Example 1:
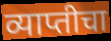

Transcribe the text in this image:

व्याप्तीचा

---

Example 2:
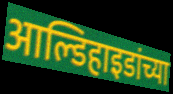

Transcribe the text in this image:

आल्डिहाइडांच्या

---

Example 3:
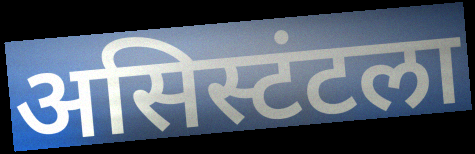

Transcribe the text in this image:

असिस्टंटला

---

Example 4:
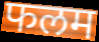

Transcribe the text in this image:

फलम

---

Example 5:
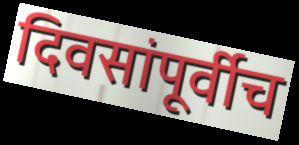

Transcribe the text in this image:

दिवसांपूर्वीच